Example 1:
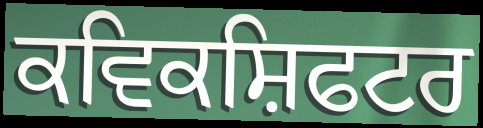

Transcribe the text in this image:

ਕਵਿਕਸ਼ਿਫਟਰ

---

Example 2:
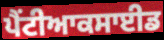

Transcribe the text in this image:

ਪੈਂਟੀਆਕਸਾਈਡ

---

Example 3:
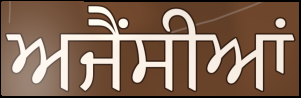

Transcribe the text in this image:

ਅਜੈਂਸੀਆਂ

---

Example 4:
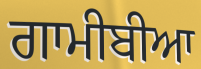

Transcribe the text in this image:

ਗਾਮੀਬੀਆ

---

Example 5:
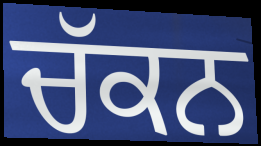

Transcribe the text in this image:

ਚੱਕਨ